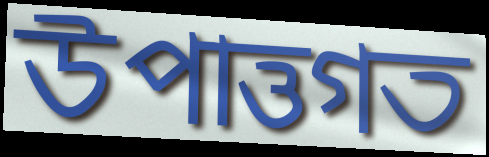
উপাত্তগত